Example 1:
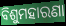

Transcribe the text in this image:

ବିଶୁମହାରଣା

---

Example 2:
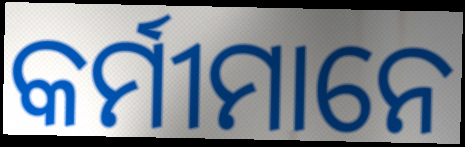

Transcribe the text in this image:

କର୍ମୀମାନେ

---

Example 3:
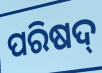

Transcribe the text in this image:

ପରିଷଦ୍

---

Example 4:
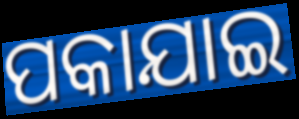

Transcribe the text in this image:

ପକାଯାଇ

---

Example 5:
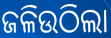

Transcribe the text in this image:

ଜଳିଉଠିଲା